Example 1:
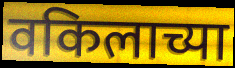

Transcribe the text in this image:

वकिलाच्या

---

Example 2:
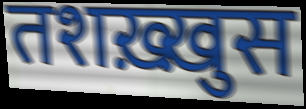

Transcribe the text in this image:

तशख़्ख़ुस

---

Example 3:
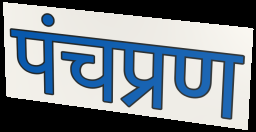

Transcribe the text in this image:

पंचप्रण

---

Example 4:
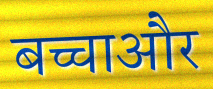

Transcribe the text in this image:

बच्चाऔर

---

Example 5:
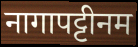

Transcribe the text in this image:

नागापट्टीनम